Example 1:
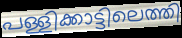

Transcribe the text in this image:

പള്ളിക്കാട്ടിലെത്തി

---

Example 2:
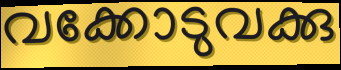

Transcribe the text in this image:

വക്കോടുവക്കു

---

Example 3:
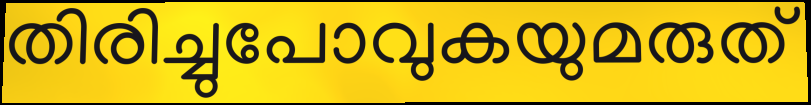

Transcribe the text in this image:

തിരിച്ചുപോവുകയുമരുത്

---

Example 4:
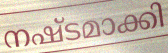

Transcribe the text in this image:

നഷ്ടമാക്കി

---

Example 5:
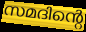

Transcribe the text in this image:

സമദിന്റെ